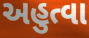
અહુત્વા